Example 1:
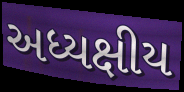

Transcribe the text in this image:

અધ્યક્ષીય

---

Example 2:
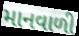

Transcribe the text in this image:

માનવાળી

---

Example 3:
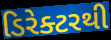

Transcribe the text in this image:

ડિરેક્ટરથી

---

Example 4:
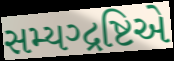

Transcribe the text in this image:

સમ્યગ્દ્રષ્ટિએ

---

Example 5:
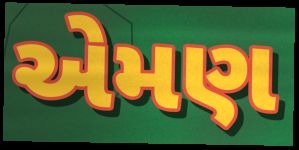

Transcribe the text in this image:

એમણ